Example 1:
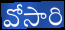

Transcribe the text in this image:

వోసారి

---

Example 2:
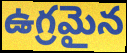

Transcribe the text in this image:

ఉగ్రమైన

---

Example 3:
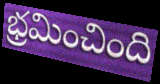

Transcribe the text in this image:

భ్రమించింది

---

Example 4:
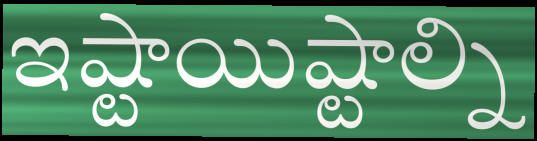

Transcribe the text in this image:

ఇష్టాయిష్టాల్ని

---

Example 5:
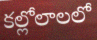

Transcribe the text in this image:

కల్లోలాలలో